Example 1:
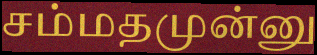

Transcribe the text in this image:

சம்மதமுன்னு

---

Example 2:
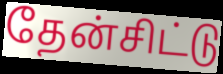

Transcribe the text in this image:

தேன்சிட்டு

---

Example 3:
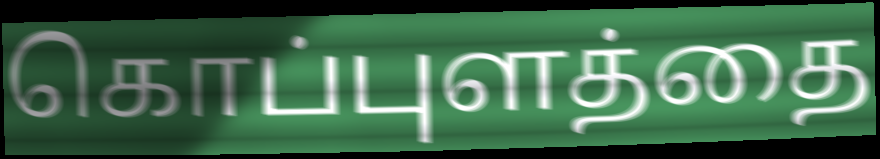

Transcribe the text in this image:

கொப்புளத்தை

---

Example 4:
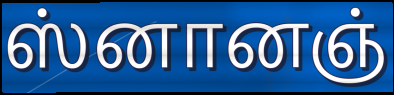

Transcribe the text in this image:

ஸ்னானஞ்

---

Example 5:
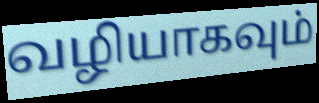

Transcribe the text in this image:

வழியாகவும்